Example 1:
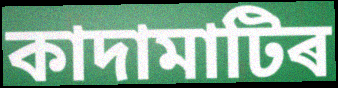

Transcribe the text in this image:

কাদামাটিৰ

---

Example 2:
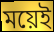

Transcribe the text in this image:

ময়েই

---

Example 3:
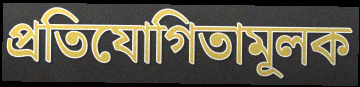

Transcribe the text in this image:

প্ৰতিযোগিতামূলক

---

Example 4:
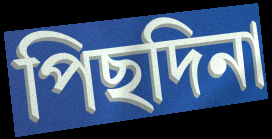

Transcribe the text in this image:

পিছদিনা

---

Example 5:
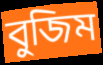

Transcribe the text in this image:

বুজিম